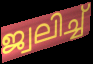
ജ്വലിച്ച്